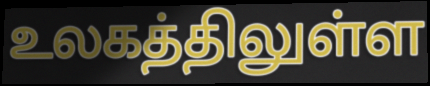
உலகத்திலுள்ள